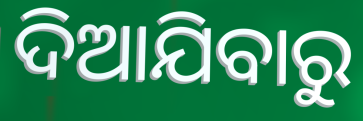
ଦିଆଯିବାରୁ